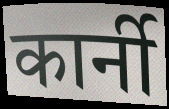
कार्नी